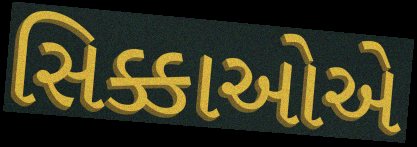
સિક્કાઓએ